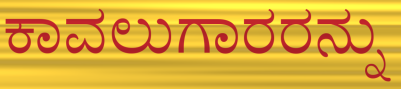
ಕಾವಲುಗಾರರನ್ನು